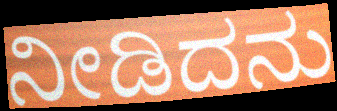
ನೀಡಿದನು